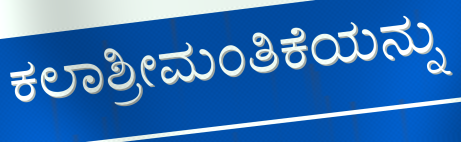
ಕಲಾಶ್ರೀಮಂತಿಕೆಯನ್ನು